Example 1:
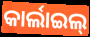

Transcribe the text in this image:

କାର୍ଲାଇଲ୍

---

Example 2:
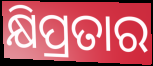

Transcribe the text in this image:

କ୍ଷିପ୍ରତାର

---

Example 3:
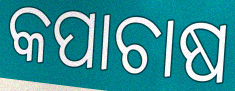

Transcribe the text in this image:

କପାଚାଷ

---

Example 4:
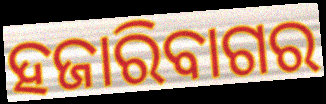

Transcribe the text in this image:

ହଜାରିବାଗର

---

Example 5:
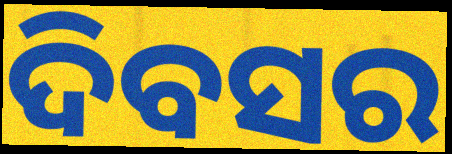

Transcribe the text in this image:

ଦିବସର